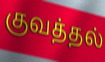
குவத்தல்